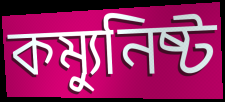
কম্যুনিষ্ট